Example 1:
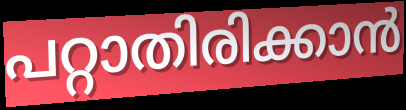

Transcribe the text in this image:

പറ്റാതിരിക്കാൻ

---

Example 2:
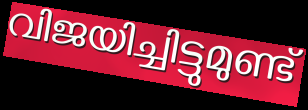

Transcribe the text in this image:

വിജയിച്ചിട്ടുമുണ്ട്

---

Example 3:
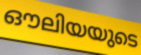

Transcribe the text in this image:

ഔലിയയുടെ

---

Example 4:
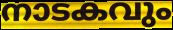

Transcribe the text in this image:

നാടകവും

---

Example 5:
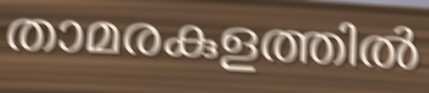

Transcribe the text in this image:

താമരകുളത്തിൽ